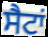
ਸੈਟਾਂ